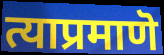
त्याप्रमाणॆ